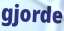
gjorde